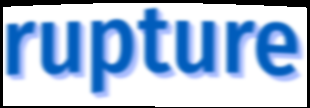
rupture